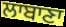
ਲਾਬਾਣਾ